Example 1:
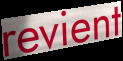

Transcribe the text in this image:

revient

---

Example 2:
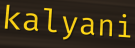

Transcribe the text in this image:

kalyani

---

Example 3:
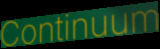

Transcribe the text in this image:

Continuum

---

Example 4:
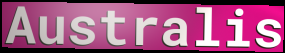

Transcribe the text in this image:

Australis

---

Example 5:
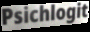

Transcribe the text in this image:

Psichlogit